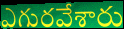
ఎగురవేశారు